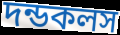
দন্ডকলস